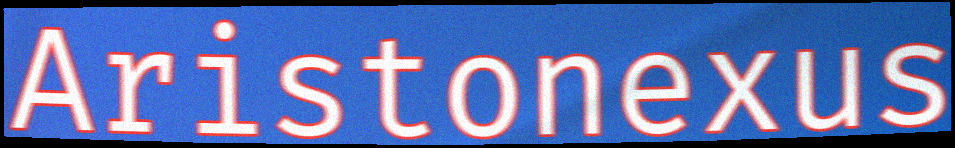
Aristonexus